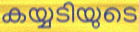
കയ്യടിയുടെ